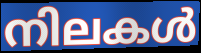
നിലകൾ